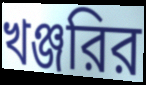
খঞ্জরির